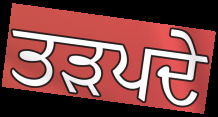
ਤੜਪਦੇ